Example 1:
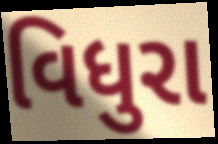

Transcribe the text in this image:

વિધુરા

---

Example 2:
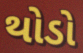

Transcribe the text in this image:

થોડો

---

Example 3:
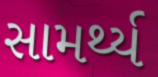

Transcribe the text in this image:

સામર્થ્ય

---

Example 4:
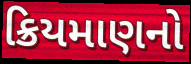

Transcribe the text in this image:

ક્રિયમાણનો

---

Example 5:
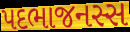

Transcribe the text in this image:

પદભાજનસ્સ